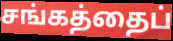
சங்கத்தைப்